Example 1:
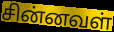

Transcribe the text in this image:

சின்னவள்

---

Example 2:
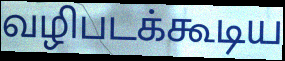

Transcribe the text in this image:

வழிபடக்கூடிய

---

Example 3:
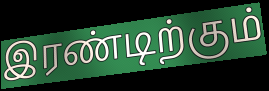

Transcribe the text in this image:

இரண்டிற்கும்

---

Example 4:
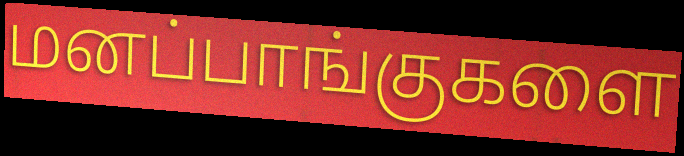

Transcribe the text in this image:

மனப்பாங்குகளை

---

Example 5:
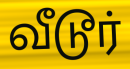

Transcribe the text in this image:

வீடூர்